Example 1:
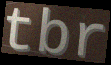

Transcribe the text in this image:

tbr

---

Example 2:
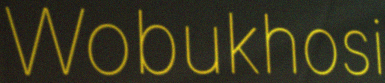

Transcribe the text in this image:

Wobukhosi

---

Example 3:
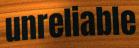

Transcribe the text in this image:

unreliable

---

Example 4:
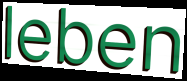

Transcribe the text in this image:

leben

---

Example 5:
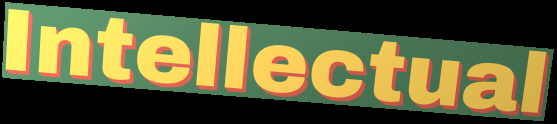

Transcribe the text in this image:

Intellectual